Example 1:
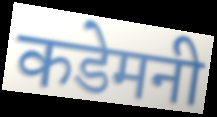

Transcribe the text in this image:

कडेमनी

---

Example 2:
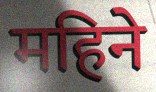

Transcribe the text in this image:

महिने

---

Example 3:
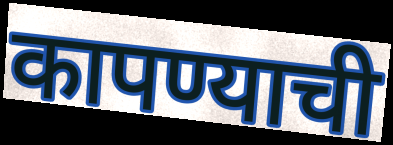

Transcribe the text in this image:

कापण्याची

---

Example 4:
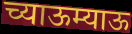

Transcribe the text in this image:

च्याऊम्याऊ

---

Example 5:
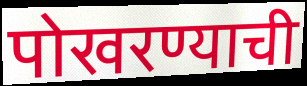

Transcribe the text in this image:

पोखरण्याची